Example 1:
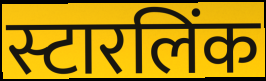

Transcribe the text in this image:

स्‍टारलिंक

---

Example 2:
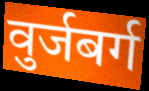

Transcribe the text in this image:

वुर्जबर्ग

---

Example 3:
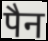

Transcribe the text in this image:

पैन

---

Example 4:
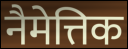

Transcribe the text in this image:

नैमेत्तिक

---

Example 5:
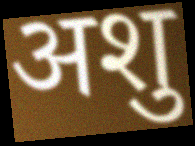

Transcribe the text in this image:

अशु